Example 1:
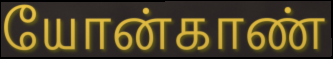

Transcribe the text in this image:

யோன்காண்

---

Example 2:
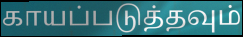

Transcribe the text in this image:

காயப்படுத்தவும்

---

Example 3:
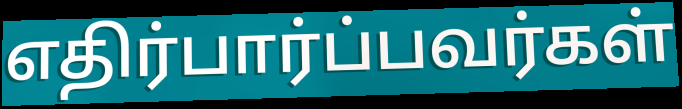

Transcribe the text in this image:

எதிர்பார்ப்பவர்கள்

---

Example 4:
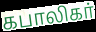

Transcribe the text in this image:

கபாலிகர்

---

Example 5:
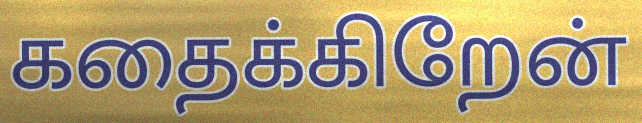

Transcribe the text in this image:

கதைக்கிறேன்